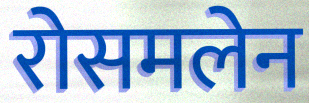
रोसमलेन